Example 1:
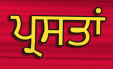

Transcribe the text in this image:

ਪ੍ਰਸਤਾਂ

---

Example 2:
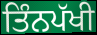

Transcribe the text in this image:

ਤਿੰਨਪੱਖੀ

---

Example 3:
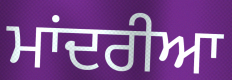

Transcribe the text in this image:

ਮਾਂਦਰੀਆ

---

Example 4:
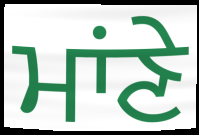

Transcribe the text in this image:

ਮਾਂਣੇ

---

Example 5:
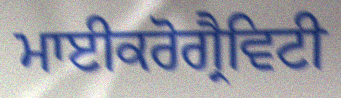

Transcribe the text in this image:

ਮਾਈਕਰੋਗ੍ਰੈਵਿਟੀ